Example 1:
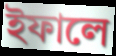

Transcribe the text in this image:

ইফালে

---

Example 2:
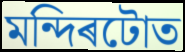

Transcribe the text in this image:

মন্দিৰটোত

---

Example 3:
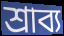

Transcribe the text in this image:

শ্ৰাব্য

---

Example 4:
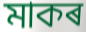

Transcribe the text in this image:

মাকৰ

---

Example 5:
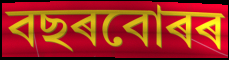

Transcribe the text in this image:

বছৰবোৰৰ